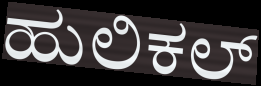
ಹುಲಿಕಲ್